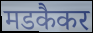
मडकैकर